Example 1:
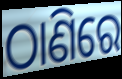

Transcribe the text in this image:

ଠାଣିରେ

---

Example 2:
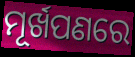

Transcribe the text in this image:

ମୂର୍ଖପଣରେ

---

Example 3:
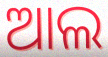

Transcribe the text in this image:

ଆଲ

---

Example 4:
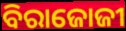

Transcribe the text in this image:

ବିରାଜୋଜୀ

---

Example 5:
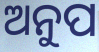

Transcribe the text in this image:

ଅନୁପ